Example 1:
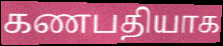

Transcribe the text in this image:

கணபதியாக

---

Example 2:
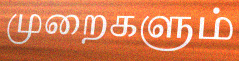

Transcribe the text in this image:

முறைகளும்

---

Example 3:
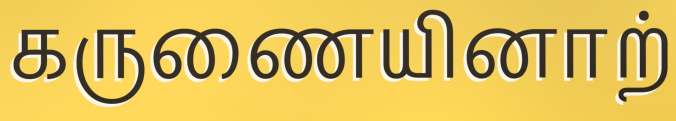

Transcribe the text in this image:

கருணையினாற்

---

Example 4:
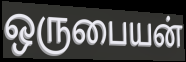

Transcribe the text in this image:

ஒருபையன்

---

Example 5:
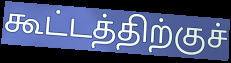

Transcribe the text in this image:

கூட்டத்திற்குச்